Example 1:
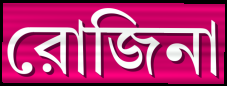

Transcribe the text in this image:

রোজিনা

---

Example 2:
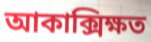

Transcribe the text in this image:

আকাক্সিক্ষত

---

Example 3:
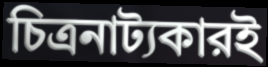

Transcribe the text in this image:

চিত্রনাট্যকারই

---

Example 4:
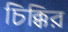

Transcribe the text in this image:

চিক্কির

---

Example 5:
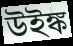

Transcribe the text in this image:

উইঙ্ক